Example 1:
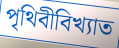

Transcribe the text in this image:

পৃথিবীবিখ্যাত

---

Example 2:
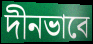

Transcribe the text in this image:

দীনভাবে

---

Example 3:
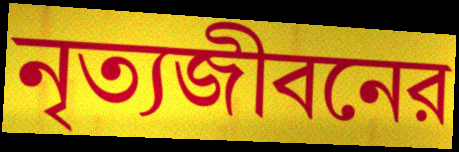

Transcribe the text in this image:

নৃত্যজীবনের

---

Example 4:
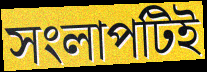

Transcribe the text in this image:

সংলাপটিই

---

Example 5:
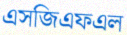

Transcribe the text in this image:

এসজিএফএল